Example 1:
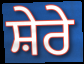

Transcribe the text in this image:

ਸ਼ੇਰੇ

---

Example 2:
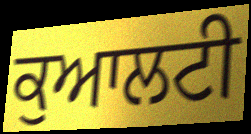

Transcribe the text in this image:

ਕੁਆਲਟੀ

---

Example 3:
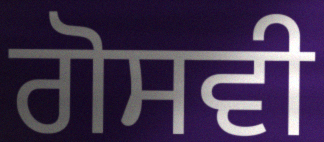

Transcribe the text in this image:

ਗੋਸਵੀ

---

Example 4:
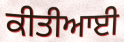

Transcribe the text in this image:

ਕੀਤੀਆਈ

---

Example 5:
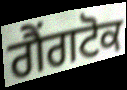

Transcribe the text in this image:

ਗੈਂਗਟੋਕ